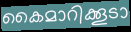
കൈമാറിക്കൂടാ